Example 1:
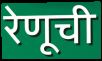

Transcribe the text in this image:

रेणूची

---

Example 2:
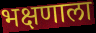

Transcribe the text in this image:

भक्षणाला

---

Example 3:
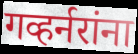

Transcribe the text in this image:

गव्हर्नरांना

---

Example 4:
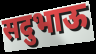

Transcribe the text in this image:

सदुभाऊ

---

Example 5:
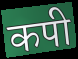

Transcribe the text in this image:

कपी